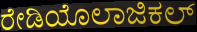
ರೇಡಿಯೊಲಾಜಿಕಲ್